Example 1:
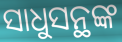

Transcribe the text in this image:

ସାଧୁସନ୍ଥଙ୍କ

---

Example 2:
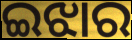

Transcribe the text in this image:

ଇଝାର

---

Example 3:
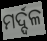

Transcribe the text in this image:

ମର୍ଦ୍ଦଳ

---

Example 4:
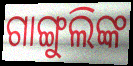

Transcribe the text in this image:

ଗାଙ୍ଗୁଲିଙ୍କ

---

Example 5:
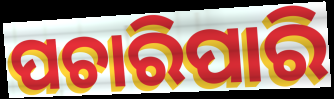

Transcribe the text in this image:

ପଚାରିପାରି